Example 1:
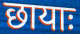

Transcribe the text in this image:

छायाः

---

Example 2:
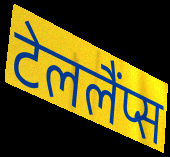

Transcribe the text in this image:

टेललैंप्स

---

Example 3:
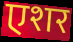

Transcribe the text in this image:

एशर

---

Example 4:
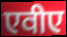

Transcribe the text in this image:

एवीए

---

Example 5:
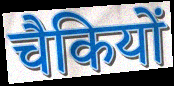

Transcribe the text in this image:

चैकियों